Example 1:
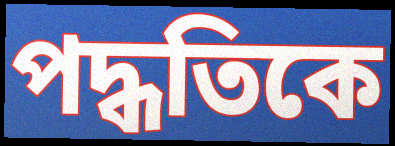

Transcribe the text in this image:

পদ্ধতিকে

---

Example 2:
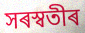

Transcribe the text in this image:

সৰস্বতীৰ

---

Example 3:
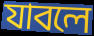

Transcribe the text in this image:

যাবলে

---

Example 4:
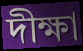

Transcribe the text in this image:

দীক্ষা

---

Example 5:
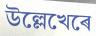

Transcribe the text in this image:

উল্লেখেৰে